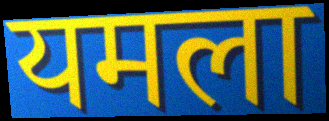
यमला